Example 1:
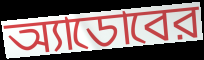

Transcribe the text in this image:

অ্যাডোবের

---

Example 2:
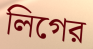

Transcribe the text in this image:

লিগের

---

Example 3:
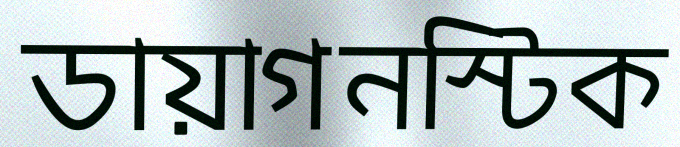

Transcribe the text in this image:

ডায়াগনস্টিক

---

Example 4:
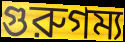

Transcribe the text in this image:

গুরুগম্য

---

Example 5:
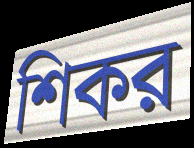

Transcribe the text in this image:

শিকর